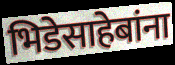
भिडेसाहेबांना